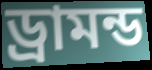
ড্রামন্ড